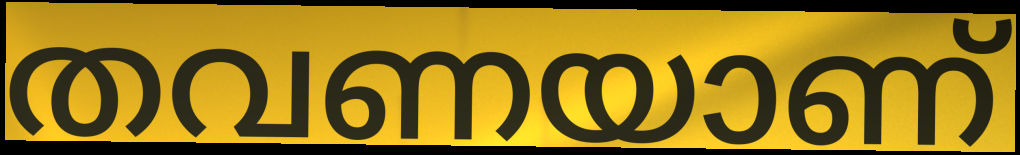
തവണയാണ്